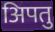
अिपतु